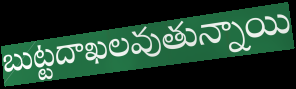
బుట్టదాఖలవుతున్నాయి